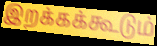
இறக்கக்கூடும்